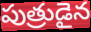
పుత్రుడైన